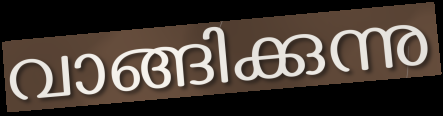
വാങ്ങിക്കുന്നു